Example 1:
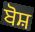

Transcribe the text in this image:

ਬੋਸ਼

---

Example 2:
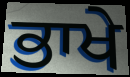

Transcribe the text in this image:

ਭਾਖੇ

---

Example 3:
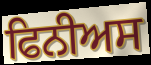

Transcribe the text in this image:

ਫਿਨੀਅਸ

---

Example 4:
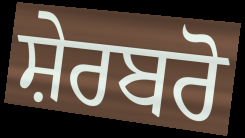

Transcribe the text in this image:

ਸ਼ੇਰਬਰੋ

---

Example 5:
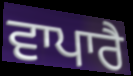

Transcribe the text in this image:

ਵਾਪਾਰੈ